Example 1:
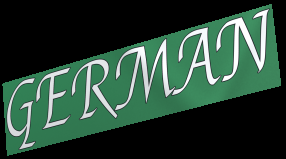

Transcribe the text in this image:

GERMAN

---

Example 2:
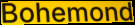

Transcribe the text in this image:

Bohemond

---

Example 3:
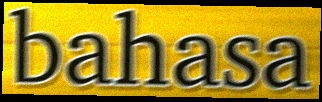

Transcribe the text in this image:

bahasa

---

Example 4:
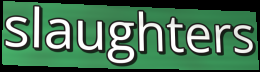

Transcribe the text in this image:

slaughters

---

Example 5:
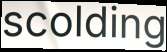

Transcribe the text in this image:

scolding